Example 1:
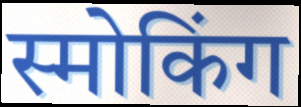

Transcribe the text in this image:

स्‍मोकिंग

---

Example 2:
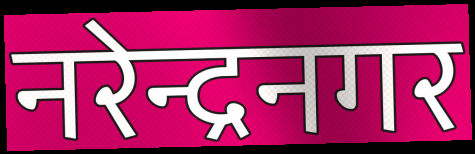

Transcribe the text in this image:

नरेन्द्रनगर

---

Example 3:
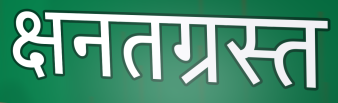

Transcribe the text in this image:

क्षनतग्रस्त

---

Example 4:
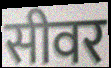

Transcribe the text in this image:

सीवर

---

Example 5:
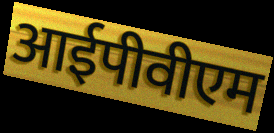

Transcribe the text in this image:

आईपीवीएम